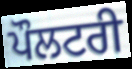
ਪੌਲਟਰੀ